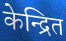
केन्द्रित